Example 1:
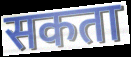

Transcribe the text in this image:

सकता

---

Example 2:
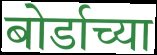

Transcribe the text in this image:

बोर्डाच्या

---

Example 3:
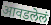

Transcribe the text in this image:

आवडलेलं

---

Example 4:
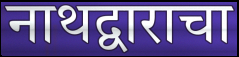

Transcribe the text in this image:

नाथद्वाराचा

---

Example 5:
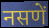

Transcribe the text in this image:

नसणें